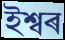
ইশ্বৰ